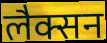
लैक्सन